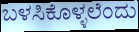
ಬಳಸಿಕೊಳ್ಳಲೆಂದು